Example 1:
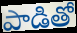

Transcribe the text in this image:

పాడితో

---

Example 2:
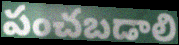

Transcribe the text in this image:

పంచబడాలి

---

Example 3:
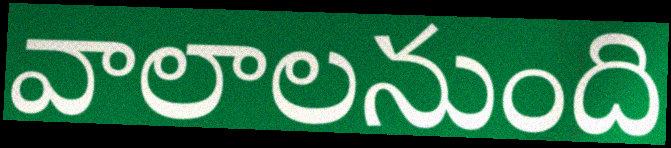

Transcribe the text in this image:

వాలాలనుంది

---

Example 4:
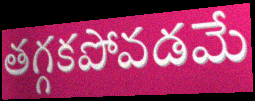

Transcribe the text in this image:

తగ్గకపోవడమే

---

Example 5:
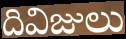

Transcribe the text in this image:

దివిజులు